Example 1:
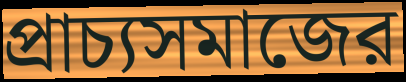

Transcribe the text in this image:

প্রাচ্যসমাজের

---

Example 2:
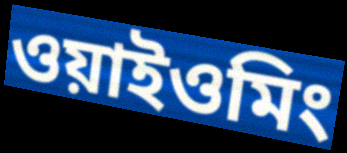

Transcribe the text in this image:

ওয়াইওমিং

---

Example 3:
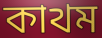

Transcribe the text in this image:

কাথম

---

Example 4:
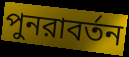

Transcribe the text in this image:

পুনরাবর্তন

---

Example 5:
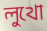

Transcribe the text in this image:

লুথো